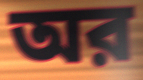
অর